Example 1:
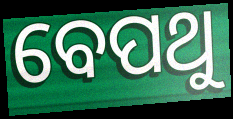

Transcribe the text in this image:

ବେପଥୁ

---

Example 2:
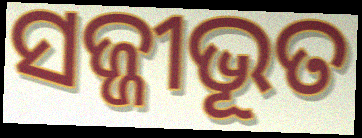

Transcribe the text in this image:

ସଜ୍ଜୀଭୂତ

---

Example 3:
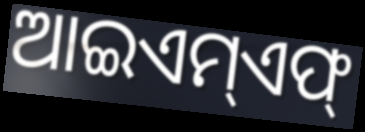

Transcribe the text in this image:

ଆଇଏମ୍ଏଫ୍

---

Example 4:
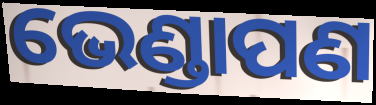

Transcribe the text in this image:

ଭେଣ୍ଡାପଣ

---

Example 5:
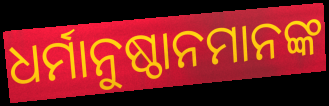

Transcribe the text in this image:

ଧର୍ମାନୁଷ୍ଠାନମାନଙ୍କ